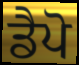
ਡੈਪੋ